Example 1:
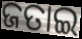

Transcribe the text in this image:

ଜତାଇ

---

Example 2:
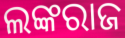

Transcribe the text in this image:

ଲଙ୍କରାଜ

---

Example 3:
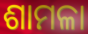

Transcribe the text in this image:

ଶାମଳା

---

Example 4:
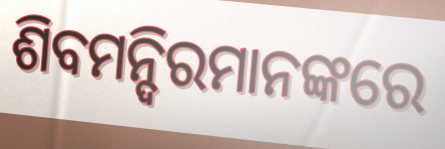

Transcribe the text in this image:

ଶିବମନ୍ଦିରମାନଙ୍କରେ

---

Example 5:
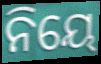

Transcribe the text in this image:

ନିୟେ